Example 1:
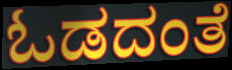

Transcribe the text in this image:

ಓಡದಂತೆ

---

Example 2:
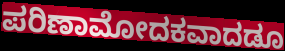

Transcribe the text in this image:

ಪರಿಣಾಮೋದಕವಾದಡೂ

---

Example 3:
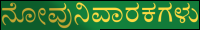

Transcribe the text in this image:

ನೋವುನಿವಾರಕಗಳು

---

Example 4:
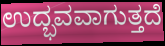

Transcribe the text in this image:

ಉದ್ಭವವಾಗುತ್ತದೆ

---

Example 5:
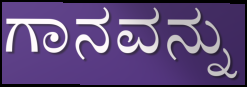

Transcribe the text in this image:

ಗಾನವನ್ನು